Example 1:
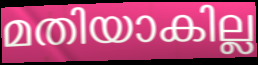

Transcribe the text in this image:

മതിയാകില്ല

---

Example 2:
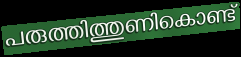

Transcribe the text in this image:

പരുത്തിത്തുണികൊണ്ട്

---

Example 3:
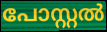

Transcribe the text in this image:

പോസ്റ്റൽ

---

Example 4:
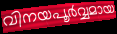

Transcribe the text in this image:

വിനയപൂർവ്വമായ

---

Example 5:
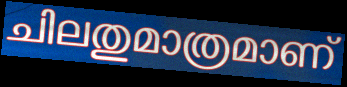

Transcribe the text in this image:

ചിലതുമാത്രമാണ്